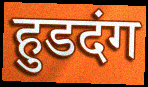
हुडदंग